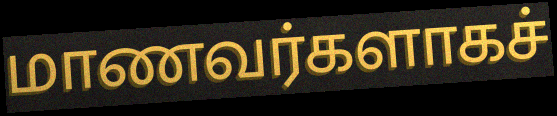
மாணவர்களாகச்